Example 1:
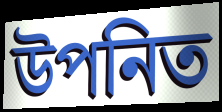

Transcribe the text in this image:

উপনিত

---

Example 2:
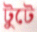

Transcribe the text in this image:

টুটে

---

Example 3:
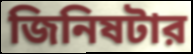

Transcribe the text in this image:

জিনিষটার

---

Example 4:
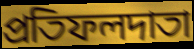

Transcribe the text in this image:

প্রতিফলদাতা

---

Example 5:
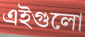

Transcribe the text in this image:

এইগুলো